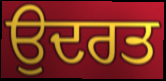
ਉਦਰਤ